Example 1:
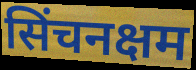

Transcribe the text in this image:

सिंचनक्षम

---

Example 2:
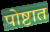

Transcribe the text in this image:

पोष्टात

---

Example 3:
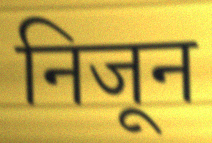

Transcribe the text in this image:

निजून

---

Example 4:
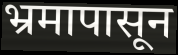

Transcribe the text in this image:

भ्रमापासून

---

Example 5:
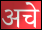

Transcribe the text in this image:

अचे